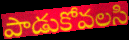
పాడుకోవలసి